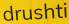
drushti